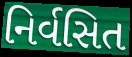
નિર્વસિત